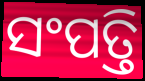
ସଂପତ୍ତି